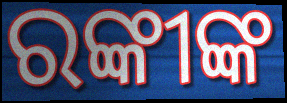
ରଙ୍କୀଙ୍କ